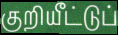
குறியீட்டுப்